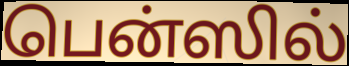
பென்ஸில்